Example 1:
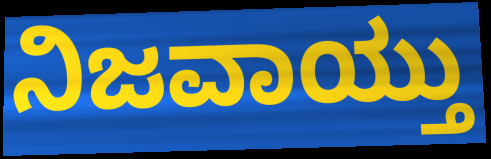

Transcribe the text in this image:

ನಿಜವಾಯ್ತು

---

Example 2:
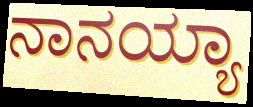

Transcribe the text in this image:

ನಾನಯ್ಯಾ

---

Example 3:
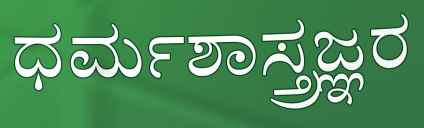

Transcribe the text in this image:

ಧರ್ಮಶಾಸ್ತ್ರಜ್ಞರ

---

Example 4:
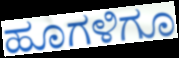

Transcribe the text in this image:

ಹೂಗಳಿಗೂ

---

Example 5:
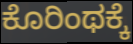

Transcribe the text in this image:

ಕೊರಿಂಥಕ್ಕೆ